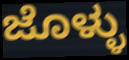
ಜೊಳ್ಳು